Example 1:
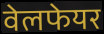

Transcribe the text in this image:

वेलफेयर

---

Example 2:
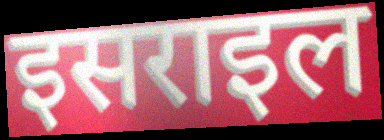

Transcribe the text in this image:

इसराइल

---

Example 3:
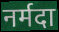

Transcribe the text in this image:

नर्मदा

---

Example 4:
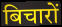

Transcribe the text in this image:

बिचारों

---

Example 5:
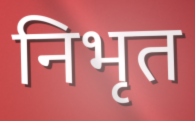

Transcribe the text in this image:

निभृत